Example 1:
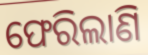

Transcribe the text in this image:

ଫେରିଲାଣି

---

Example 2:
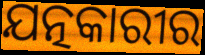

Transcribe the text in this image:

ଯତ୍ନକାରୀର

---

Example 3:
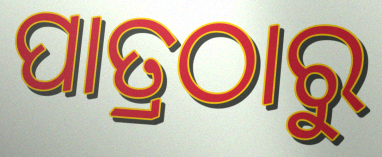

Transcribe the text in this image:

ପାତ୍ରଠାରୁ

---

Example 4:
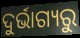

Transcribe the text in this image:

ଦୁର୍ଭାଗ୍ୟରୁ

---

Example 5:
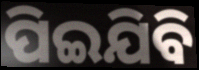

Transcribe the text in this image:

ପିଇଯିବି